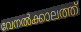
വേനൽക്കാലത്ത്